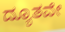
ದ್ಯೂತವೇ